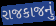
રાજકાજનું